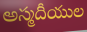
అస్మదీయుల